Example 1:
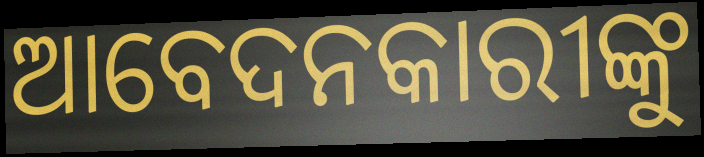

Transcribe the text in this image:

ଆବେଦନକାରୀଙ୍କୁ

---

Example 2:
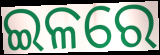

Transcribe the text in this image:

ଇଳରେ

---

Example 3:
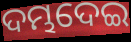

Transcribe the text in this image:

ଦମ୍ଭଦେଇ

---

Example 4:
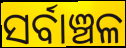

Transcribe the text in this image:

ସର୍ବାଞ୍ଚଳ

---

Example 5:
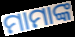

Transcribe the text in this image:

ମାମାଙ୍କ